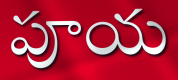
పూయ